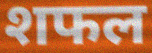
शफल